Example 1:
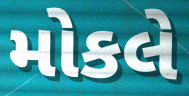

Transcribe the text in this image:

મોકલે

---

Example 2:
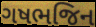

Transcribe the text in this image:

ગષભજિન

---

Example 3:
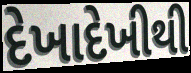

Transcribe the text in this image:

દેખાદેખીથી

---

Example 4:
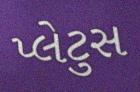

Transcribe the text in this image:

પ્લેટુસ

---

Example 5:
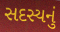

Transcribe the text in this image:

સદસ્યનું